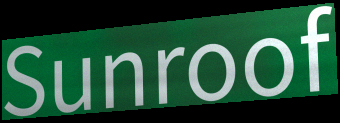
Sunroof